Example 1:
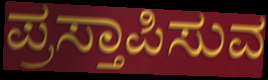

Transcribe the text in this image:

ಪ್ರಸ್ತಾಪಿಸುವ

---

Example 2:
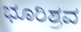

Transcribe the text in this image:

ಭೂರಿಶ್ರವ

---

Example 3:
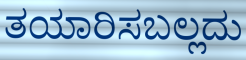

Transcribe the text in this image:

ತಯಾರಿಸಬಲ್ಲದು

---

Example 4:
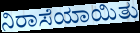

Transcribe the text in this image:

ನಿರಾಸೆಯಾಯಿತು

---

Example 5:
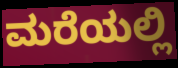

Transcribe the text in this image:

ಮರೆಯಲ್ಲಿ